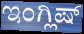
ಇಂಗ್ಲಿಷ್